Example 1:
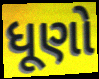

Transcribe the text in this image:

ધૂણો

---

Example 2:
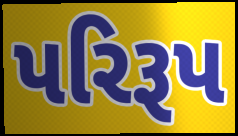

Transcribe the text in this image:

પરિરૂપ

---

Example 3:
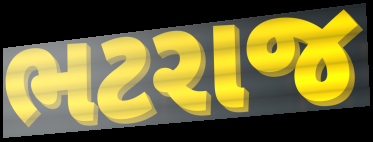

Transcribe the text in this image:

ભટરાજ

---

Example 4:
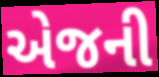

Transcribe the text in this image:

એજની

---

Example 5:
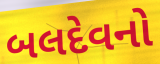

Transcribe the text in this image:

બલદેવનો